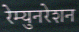
रेम्युनरेशन